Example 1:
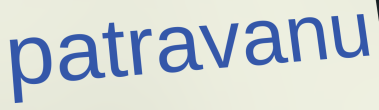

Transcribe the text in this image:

patravanu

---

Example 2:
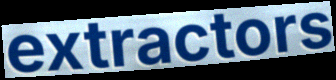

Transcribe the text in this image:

extractors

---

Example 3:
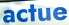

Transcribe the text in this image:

actue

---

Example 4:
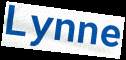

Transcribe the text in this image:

Lynne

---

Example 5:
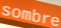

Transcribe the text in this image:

sombre